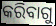
କରିବାଗୁ